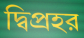
দ্বিপ্রহর